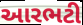
આરભટી